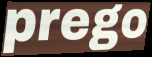
prego